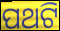
ପଥଟି